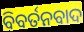
ବିବର୍ତନବାଦ